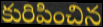
కురిపించిన